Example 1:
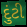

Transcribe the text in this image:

દુંટી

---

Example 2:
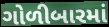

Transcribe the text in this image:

ગોળીબારમાં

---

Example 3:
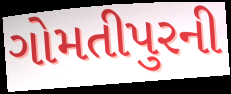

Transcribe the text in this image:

ગોમતીપુરની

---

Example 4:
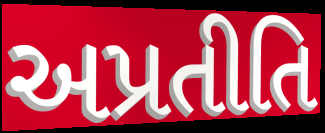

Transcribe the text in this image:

અપ્રતીતિ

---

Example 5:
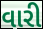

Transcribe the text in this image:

વારી